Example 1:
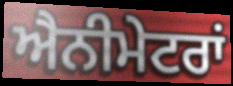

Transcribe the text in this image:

ਐਨੀਮੇਟਰਾਂ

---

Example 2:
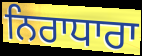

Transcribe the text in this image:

ਨਿਰਾਧਾਰਾ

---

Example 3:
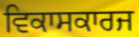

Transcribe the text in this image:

ਵਿਕਾਸਕਾਰਜ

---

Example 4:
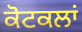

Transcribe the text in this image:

ਕੋਟਕਲਾਂ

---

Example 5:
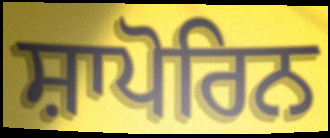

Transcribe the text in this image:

ਸ਼ਾਪੋਰਿਨ